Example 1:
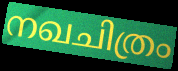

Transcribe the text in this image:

നഖചിത്രം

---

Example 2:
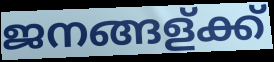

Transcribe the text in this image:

ജനങ്ങള്ക്ക്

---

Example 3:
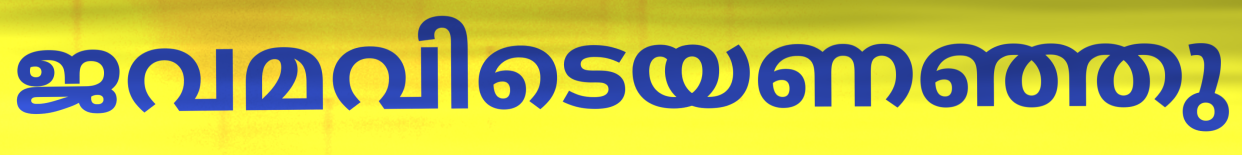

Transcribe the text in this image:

ജവമവിടെയണഞ്ഞു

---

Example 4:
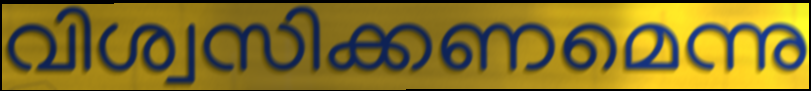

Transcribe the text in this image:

വിശ്വസിക്കണമെന്നു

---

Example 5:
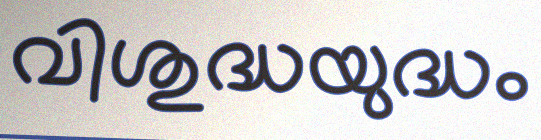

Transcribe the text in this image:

വിശുദ്ധയുദ്ധം